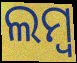
ଲମ୍ୱ